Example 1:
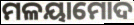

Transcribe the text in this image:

ମଳୟାମୋଦ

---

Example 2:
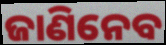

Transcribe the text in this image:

ଜାଣିନେବ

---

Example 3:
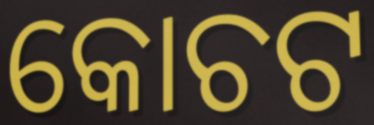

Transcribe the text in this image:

କୋଚଟ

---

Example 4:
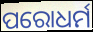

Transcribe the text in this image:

ପରୋଧର୍ମ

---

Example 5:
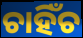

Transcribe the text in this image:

ଚାହିଁଚ